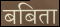
बबिता